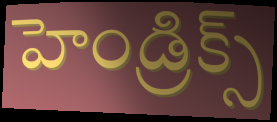
హెండ్రిక్స్